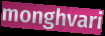
monghvari